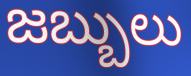
జబ్బులు